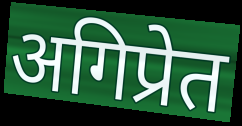
अगिप्रेत